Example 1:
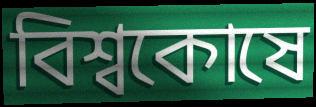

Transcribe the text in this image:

বিশ্বকোষে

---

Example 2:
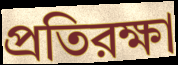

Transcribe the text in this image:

প্রতিরক্ষা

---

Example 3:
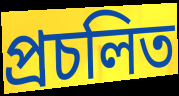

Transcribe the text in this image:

প্রচলিত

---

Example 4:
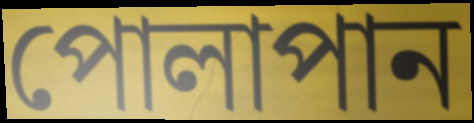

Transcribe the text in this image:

পোলাপান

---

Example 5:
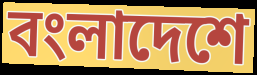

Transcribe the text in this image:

বংলাদেশে